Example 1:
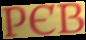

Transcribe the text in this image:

PEB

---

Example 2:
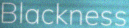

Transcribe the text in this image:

Blackness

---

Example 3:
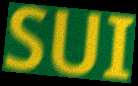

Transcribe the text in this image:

SUI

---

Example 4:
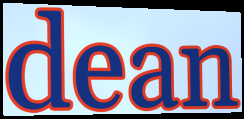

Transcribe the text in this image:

dean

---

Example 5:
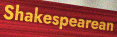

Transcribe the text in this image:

Shakespearean